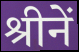
श्रीनें